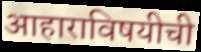
आहाराविषयीची